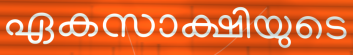
ഏകസാക്ഷിയുടെ